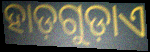
ହାଡ଼ଗୁଡ଼ାଏ